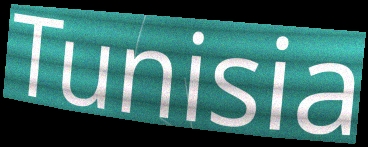
Tunisia